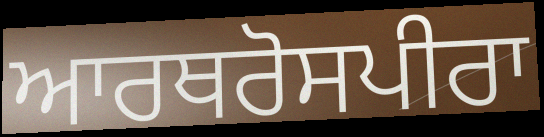
ਆਰਥਰੋਸਪੀਰਾ